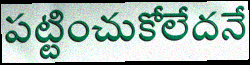
పట్టించుకోలేదనే